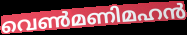
വെൺമണിമഹൻ